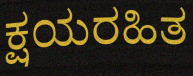
ಕ್ಷಯರಹಿತ